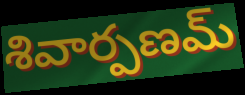
శివార్పణమ్